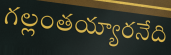
గల్లంతయ్యారనేది